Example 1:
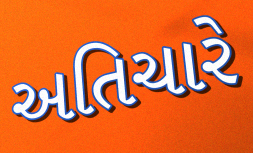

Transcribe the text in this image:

અતિચારે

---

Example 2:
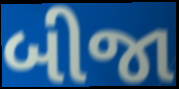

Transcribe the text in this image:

બીજા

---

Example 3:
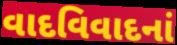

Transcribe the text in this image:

વાદવિવાદનાં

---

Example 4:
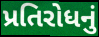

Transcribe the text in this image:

પ્રતિરોધનું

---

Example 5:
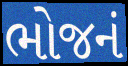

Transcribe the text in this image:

ભોજનં